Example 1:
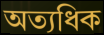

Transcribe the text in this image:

অত্যধিক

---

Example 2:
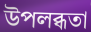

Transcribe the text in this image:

উপলব্ধতা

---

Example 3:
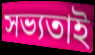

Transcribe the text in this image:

সভ্যতাই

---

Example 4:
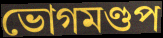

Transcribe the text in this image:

ভোগমণ্ডপ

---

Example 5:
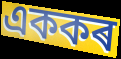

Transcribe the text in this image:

এককৰ